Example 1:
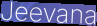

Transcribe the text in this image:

Jeevana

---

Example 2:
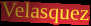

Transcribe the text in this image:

Velasquez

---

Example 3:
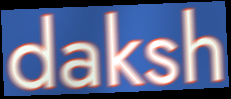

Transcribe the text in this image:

daksh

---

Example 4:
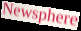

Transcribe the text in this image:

Newsphere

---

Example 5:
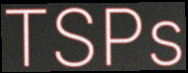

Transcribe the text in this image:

TSPs